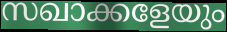
സഖാക്കളേയും